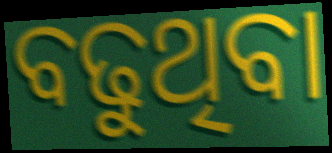
ବଢୁଥିବା